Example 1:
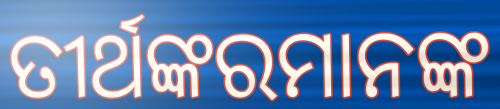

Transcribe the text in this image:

ତୀର୍ଥଙ୍କରମାନଙ୍କ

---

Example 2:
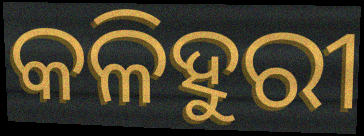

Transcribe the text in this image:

କଳିହୁରୀ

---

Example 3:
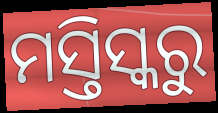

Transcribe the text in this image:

ମସ୍ତିସ୍କରୁ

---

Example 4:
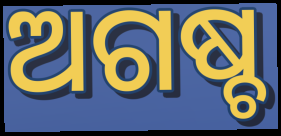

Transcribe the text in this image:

ଅଗଷ୍ଚ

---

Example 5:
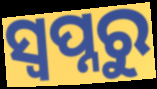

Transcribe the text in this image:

ସ୍ୱପ୍ନରୁ